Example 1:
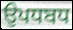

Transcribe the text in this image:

ਉਪਧਬਧ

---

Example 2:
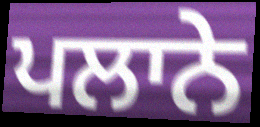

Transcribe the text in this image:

ਪਲਾਨੇ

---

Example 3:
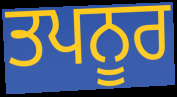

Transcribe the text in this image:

ਤਪਨੂਰ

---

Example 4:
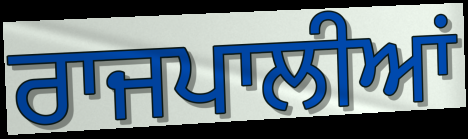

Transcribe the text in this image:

ਰਾਜਪਾਲੀਆਂ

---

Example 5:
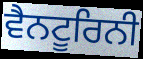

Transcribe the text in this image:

ਵੈਨਟੂਰਿਨੀ